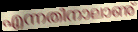
എന്നതിനാലാണു്